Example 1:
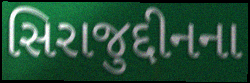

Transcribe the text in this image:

સિરાજુદ્દીનના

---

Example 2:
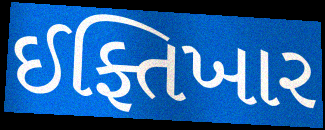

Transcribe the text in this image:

ઈફ્તિખાર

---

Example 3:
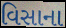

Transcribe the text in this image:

વિસાના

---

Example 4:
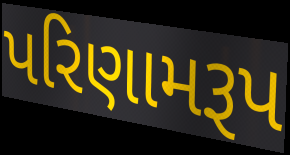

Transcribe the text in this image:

પરિણામરૂપ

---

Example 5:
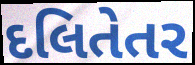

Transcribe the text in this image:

દલિતેતર